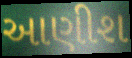
આણીશ